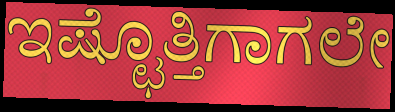
ಇಷ್ಟೊತ್ತಿಗಾಗಲೇ